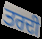
ਤਰਦੀ